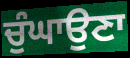
ਚੁੰਘਾਉਣਾ